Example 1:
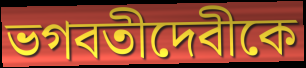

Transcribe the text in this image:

ভগবতীদেবীকে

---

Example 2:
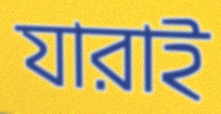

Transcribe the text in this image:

যারাই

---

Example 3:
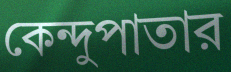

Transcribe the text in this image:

কেন্দুপাতার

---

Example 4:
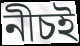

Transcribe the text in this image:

নীচই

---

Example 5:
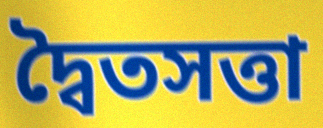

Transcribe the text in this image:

দ্বৈতসত্তা